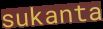
sukanta